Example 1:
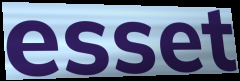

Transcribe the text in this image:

esset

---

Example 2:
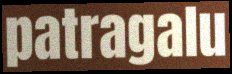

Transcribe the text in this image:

patragalu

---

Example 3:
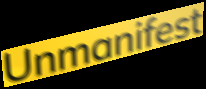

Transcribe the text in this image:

Unmanifest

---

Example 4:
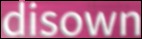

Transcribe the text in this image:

disown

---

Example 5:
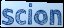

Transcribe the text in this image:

scion